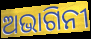
ଅଭାଗିନୀ